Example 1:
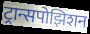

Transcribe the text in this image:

ट्रान्सपोझिशन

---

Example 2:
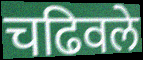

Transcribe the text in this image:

चढिवले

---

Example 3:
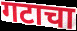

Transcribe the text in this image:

गटाचा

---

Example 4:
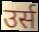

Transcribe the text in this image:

उर्स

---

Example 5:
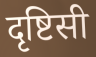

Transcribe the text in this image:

दृष्टिसी